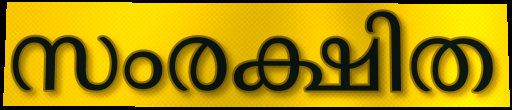
സംരക്ഷിത